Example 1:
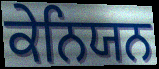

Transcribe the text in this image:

ਕੇਨਿਯਨ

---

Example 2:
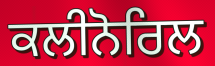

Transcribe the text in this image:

ਕਲੀਨੋਰਿਲ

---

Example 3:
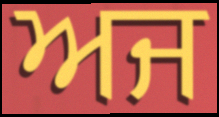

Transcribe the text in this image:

ਅਜ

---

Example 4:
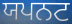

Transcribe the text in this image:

ਯਪਨਟ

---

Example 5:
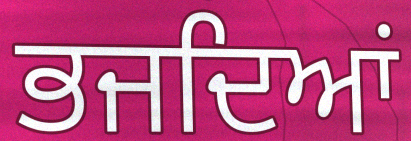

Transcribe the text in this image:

ਭਜਦਿਆਂ